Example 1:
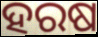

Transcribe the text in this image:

ହରଷ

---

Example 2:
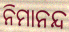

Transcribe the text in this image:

ନିମାନନ୍ଦ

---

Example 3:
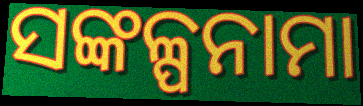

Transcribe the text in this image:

ସଙ୍କଳ୍ପନାମା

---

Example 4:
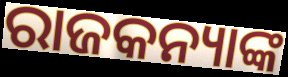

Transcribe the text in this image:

ରାଜକନ୍ୟାଙ୍କ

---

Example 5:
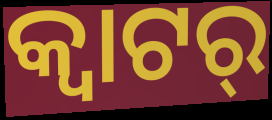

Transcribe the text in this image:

କ୍ୱାଟର୍